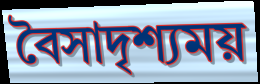
বৈসাদৃশ্যময়